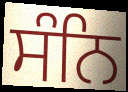
ਸੰਨਿ